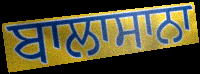
ਬਾਲਾਸਾਨਾ